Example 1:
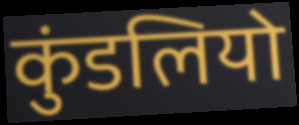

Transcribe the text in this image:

कुंडलियो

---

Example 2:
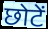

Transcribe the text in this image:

छोटें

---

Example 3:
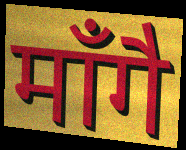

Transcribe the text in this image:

माँगै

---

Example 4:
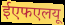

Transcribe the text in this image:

ईएफएलयू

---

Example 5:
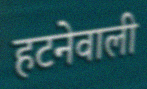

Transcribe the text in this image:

हटनेवाली